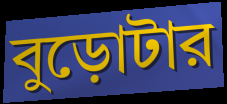
বুড়োটার